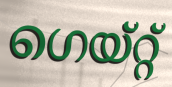
ഗെയ്റ്റ്